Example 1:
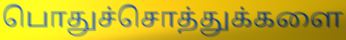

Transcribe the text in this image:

பொதுச்சொத்துக்களை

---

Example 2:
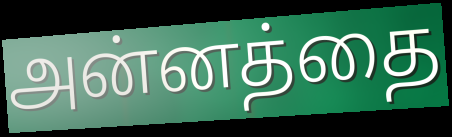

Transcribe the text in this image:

அன்னத்தை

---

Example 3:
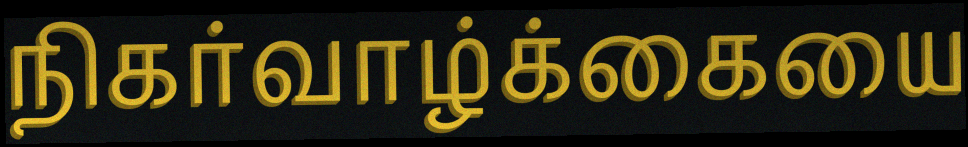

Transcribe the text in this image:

நிகர்வாழ்க்கையை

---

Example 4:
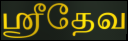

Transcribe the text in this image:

ஸ்ரீதேவ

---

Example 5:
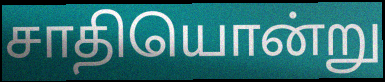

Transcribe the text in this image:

சாதியொன்று